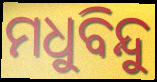
ମଧୁବିନ୍ଦୁ